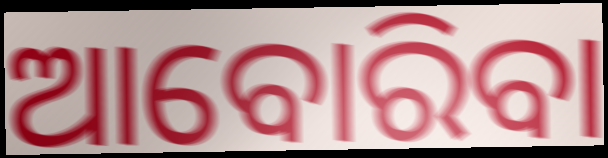
ଆବୋରିବା